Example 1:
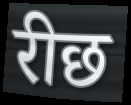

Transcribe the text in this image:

रीछ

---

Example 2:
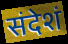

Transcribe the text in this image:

संदेशं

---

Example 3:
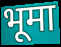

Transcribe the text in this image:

भूमा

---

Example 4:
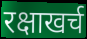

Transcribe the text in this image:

रक्षाखर्च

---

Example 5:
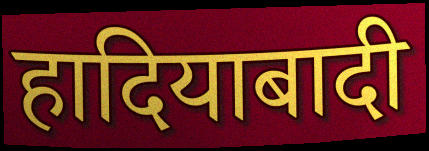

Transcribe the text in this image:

हादियाबादी